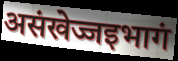
असंखेज्जइभागं